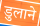
डुलाने